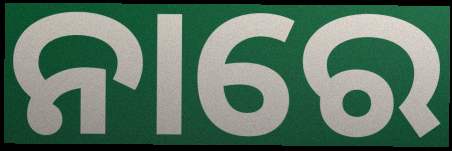
ନାରେ